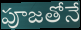
పూజతోనే